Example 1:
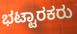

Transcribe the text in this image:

ಭಟ್ಟಾರಕರು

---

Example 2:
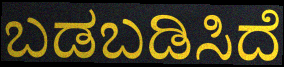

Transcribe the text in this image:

ಬಡಬಡಿಸಿದೆ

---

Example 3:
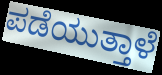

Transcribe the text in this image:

ಪಡೆಯುತ್ತಾಳೆ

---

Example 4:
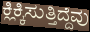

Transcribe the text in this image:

ಕ್ಲಿಕ್ಕಿಸುತ್ತಿದ್ದೆವು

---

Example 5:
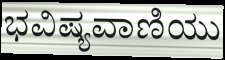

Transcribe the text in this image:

ಭವಿಷ್ಯವಾಣಿಯು